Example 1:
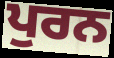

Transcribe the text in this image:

ਪੁਰਨ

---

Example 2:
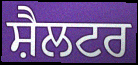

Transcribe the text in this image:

ਸ਼ੈਲਟਰ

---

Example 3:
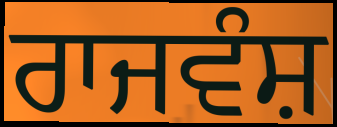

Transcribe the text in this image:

ਰਾਜਵੰਸ਼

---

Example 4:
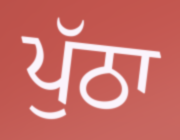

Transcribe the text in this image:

ਪੁੱਠਾ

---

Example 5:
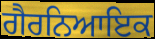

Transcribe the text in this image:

ਗੈਰਨਿਆਇਕ